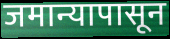
जमान्यापासून